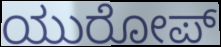
ಯುರೋಪ್